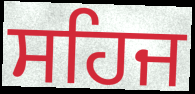
ਸਹਿਜ